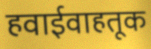
हवाईवाहतूक